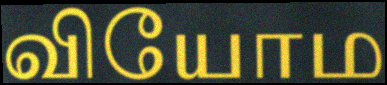
வியோம